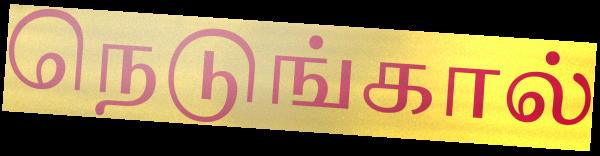
நெடுங்கால்